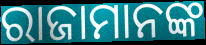
ରାଜାମାନଙ୍କ